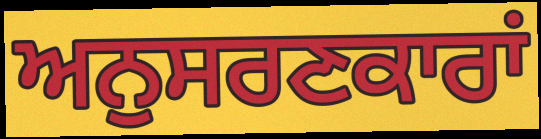
ਅਨੁਸਰਣਕਾਰਾਂ